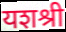
यशश्री